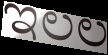
ಇಲಲ